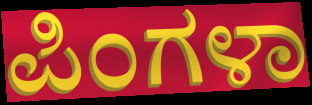
ಪಿಂಗಳಾ